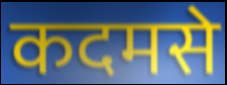
कदमसे